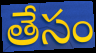
తేసం